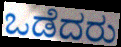
ಒಡೆದರು